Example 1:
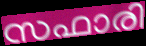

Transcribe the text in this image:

സഫാരി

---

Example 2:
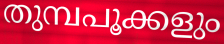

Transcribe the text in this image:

തുമ്പപൂക്കളും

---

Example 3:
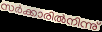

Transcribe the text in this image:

സർക്കാരിൽനിന്നു്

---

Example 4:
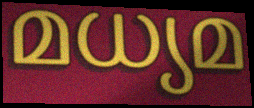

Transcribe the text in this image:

മധ്യമ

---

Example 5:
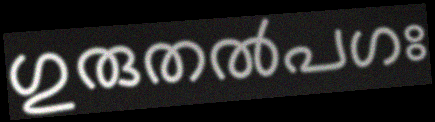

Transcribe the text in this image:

ഗുരുതൽപഗഃ